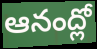
ఆనంద్లో